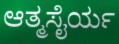
ಆತ್ಮಸೈರ್ಯ